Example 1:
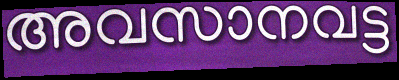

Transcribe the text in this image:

അവസാനവട്ട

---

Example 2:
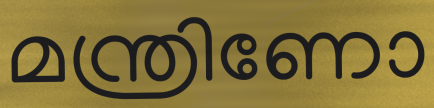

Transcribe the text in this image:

മന്ത്രിണോ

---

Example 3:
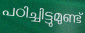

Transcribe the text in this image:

പഠിച്ചിട്ടുമുണ്ട്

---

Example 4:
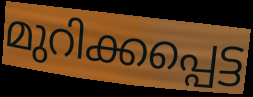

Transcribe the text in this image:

മുറിക്കപ്പെട്ട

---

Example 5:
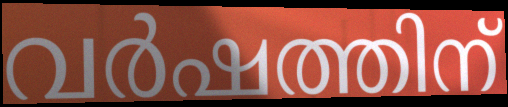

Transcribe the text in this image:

വർഷത്തിന്